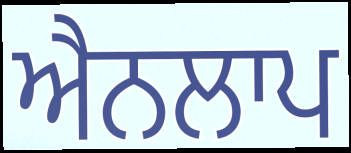
ਐਨਲਾਪ